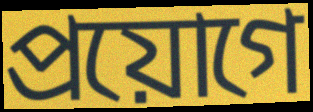
প্ৰয়োগে